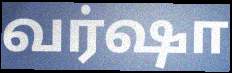
வர்ஷா